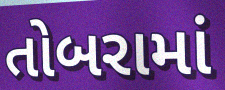
તોબરામાં